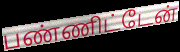
பண்ணிட்டேன்